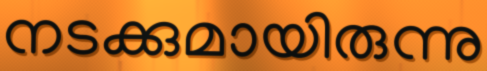
നടക്കുമായിരുന്നു